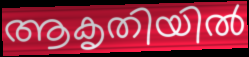
ആകൃതിയിൽ